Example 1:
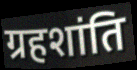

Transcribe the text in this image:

ग्रहशांति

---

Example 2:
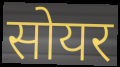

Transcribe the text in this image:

सोयर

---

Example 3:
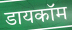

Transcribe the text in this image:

डायकॉम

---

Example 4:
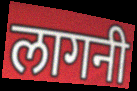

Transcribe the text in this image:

लागनी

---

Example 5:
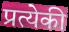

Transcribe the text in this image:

प्रत्येकी